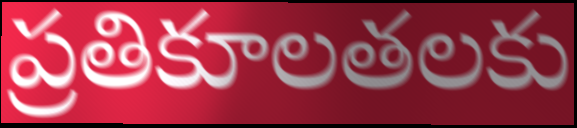
ప్రతికూలతలకు